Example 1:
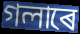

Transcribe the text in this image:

গলাৰে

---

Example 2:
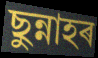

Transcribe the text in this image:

ছুন্নাহৰ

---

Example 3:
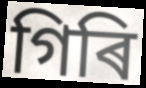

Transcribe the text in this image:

গিৰি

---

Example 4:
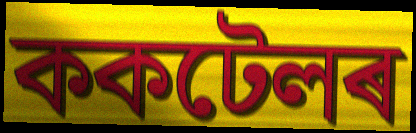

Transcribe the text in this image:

ককটেলৰ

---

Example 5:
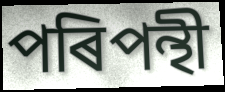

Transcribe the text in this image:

পৰিপন্থী